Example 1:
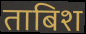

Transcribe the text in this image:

ताबिश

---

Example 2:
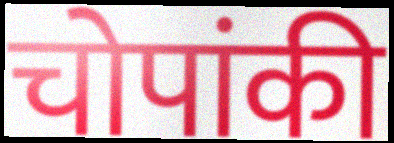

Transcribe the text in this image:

चोपांकी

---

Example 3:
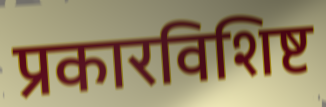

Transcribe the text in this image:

प्रकारविशिष्ट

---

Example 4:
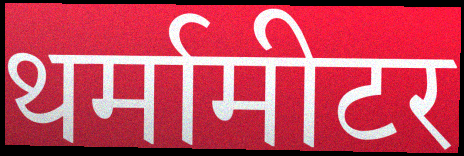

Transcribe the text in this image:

थर्मामीटर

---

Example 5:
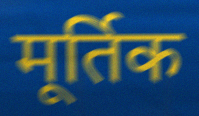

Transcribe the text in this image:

मूर्तिक